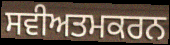
ਸਵੀਅਤਮਕਰਨ